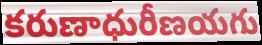
కరుణాధురీణయగు